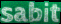
sabit